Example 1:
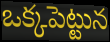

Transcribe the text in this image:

ఒక్కపెట్టున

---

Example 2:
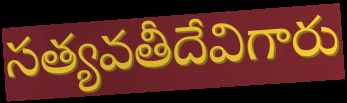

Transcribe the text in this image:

సత్యవతీదేవిగారు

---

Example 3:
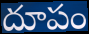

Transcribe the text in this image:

దూపం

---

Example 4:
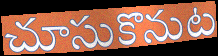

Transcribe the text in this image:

చూసుకొనుట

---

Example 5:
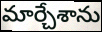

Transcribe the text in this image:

మార్చేశాను